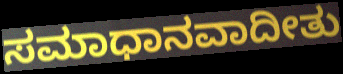
ಸಮಾಧಾನವಾದೀತು